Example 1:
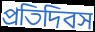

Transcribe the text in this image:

প্রতিদিবস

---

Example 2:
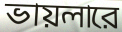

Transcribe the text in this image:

ভায়লারে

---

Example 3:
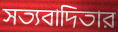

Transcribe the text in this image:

সত্যবাদিতার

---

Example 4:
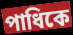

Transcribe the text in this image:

পাধিকে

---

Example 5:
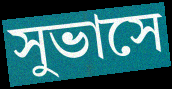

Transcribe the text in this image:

সুভাসে